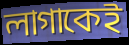
লাগাকেই